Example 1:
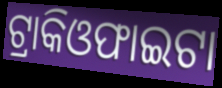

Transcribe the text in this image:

ଟ୍ରାକିଓଫାଇଟା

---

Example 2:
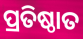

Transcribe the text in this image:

ପ୍ରତିଷ୍ଠାତ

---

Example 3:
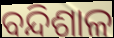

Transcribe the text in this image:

ବନ୍ଦିଶାଳ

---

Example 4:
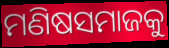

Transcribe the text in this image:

ମଣିଷସମାଜକୁ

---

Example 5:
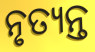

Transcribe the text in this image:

ନୃତ୍ୟନ୍ତ